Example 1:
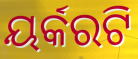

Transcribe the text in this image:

ୟର୍କରଟି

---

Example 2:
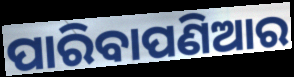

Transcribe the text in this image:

ପାରିବାପଣିଆର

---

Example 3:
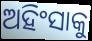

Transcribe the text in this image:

ଅହିଂସାକୁ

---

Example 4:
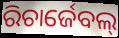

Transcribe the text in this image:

ରିଚାର୍ଜେବଲ୍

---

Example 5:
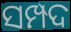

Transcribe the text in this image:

ସମ୍ପଦ